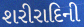
શરીરાદિની